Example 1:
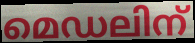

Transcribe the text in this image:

മെഡലിന്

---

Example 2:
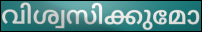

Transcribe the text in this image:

വിശ്വസിക്കുമോ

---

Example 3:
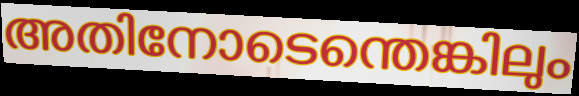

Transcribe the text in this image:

അതിനോടെന്തെങ്കിലും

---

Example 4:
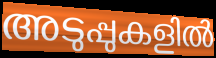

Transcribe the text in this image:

അടുപ്പുകളിൽ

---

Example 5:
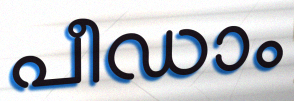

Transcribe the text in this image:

പീഡാം